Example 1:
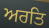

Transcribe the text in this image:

ਅਰਤਿ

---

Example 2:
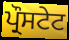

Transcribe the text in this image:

ਪ੍ਰੌਸਟੇਟ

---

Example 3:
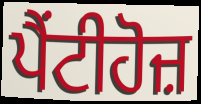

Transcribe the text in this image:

ਪੈਂਟੀਹੋਜ਼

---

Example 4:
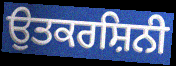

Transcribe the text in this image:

ਉਤਕਰਸ਼ਿਨੀ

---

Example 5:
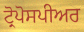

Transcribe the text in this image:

ਟ੍ਰੋਪੋਸਪੀਅਰ